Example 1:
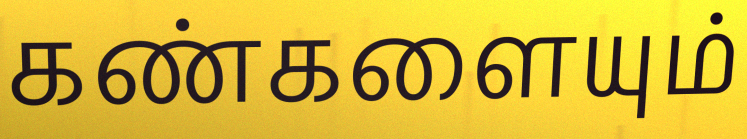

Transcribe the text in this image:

கண்களையும்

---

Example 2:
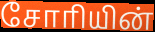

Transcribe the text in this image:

சோரியின்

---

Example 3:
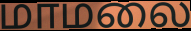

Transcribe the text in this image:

மாமலை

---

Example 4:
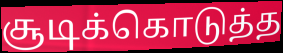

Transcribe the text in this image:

சூடிக்கொடுத்த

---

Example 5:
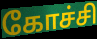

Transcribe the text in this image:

கோச்சி